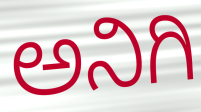
ಅನಿಗಿ